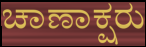
ಚಾಣಾಕ್ಷರು